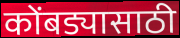
कोंबड्यासाठी